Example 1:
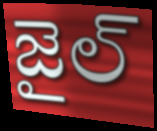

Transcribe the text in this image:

జైల్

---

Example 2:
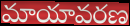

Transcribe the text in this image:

మాయావరణ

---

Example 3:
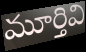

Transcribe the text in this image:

మూర్తివి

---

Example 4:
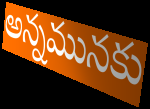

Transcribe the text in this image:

అన్నమునకు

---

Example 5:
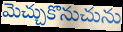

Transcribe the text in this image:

మెచ్చుకొనుచును